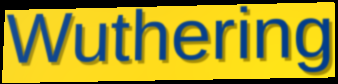
Wuthering